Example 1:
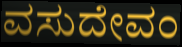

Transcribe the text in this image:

ವಸುದೇವಂ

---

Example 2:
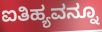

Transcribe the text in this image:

ಐತಿಹ್ಯವನ್ನೂ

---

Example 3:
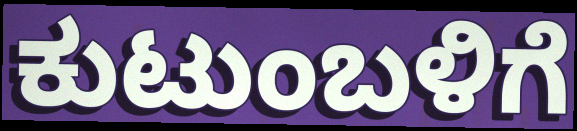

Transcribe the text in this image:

ಕುಟುಂಬಳಿಗೆ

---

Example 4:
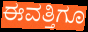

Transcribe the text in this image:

ಈವತ್ತಿಗೂ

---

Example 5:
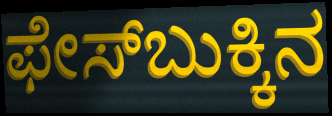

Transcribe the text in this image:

ಫೇಸ್‌ಬುಕ್ಕಿನ